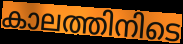
കാലത്തിനിടെ